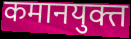
कमानयुक्त